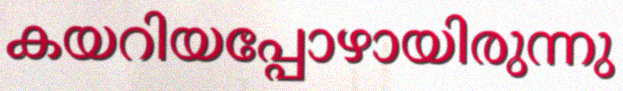
കയറിയപ്പോഴായിരുന്നു